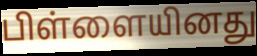
பிள்ளையினது